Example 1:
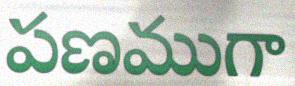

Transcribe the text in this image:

పణముగా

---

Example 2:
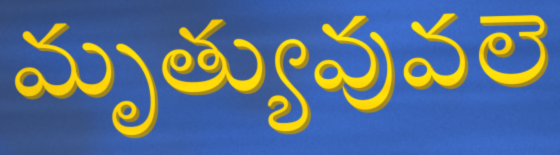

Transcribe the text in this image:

మృత్యువువలె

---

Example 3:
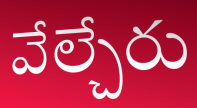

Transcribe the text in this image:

వేల్చేరు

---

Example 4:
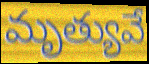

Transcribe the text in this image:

మృత్యువే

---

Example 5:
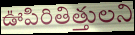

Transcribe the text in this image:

ఊపిరితిత్తులని